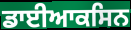
ਡਾਈਆਕਸਿਨ